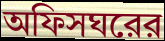
অফিসঘরের